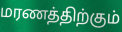
மரணத்திற்கும்